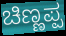
ಚಿಣ್ಣಪ್ಪ